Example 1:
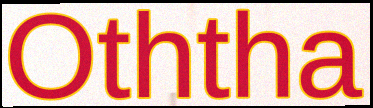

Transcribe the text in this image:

Oththa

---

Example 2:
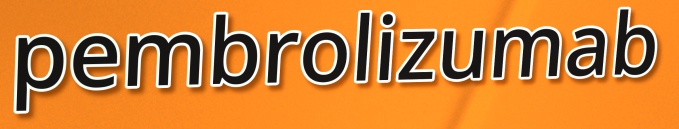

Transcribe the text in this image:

pembrolizumab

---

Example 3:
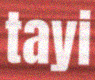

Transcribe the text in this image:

tayi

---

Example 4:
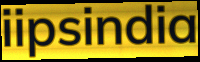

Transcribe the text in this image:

iipsindia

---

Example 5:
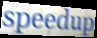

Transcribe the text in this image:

speedup